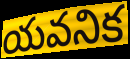
యవనిక